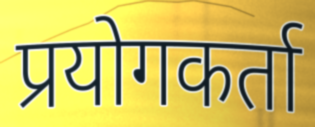
प्रयोगकर्ता